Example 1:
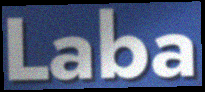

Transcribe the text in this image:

Laba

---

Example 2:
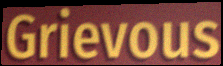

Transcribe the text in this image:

Grievous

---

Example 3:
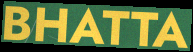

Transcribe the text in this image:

BHATTA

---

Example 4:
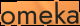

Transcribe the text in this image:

omeka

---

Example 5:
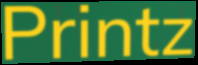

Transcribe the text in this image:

Printz